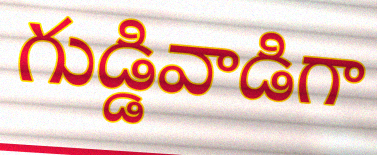
గుడ్డివాడిగా